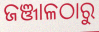
ଜଞ୍ଜାଳଠାରୁ